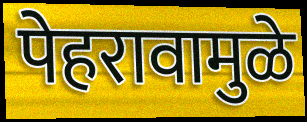
पेहरावामुळे